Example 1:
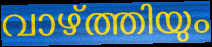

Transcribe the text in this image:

വാഴ്ത്തിയും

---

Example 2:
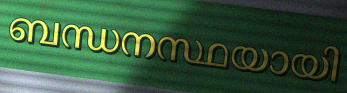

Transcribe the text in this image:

ബന്ധനസ്ഥയായി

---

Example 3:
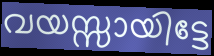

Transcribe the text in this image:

വയസ്സായിട്ടേ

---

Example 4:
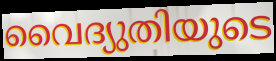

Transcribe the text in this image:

വൈദ്യുതിയുടെ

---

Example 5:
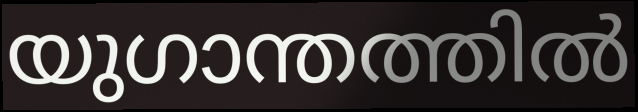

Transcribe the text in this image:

യുഗാന്തത്തിൽ